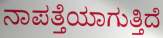
ನಾಪತ್ತೆಯಾಗುತ್ತಿದೆ